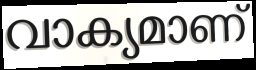
വാക്യമാണ്